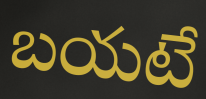
బయటే